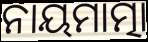
ନାୟମାତ୍ମା